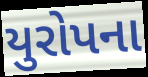
યુરોપના